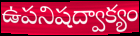
ఉపనిషద్వాక్యం